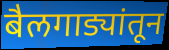
बैलगाड्यांतून